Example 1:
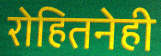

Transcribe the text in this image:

रोहितनेही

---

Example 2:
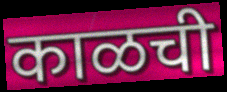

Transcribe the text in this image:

काळची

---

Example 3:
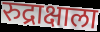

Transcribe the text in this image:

रुद्राक्षाला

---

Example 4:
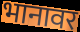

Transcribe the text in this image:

भानावर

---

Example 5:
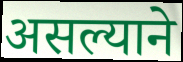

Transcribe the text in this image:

असल्‍याने